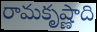
రామకృష్ణాది